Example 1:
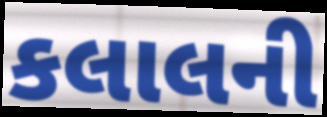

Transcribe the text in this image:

કલાલની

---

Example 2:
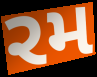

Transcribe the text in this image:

રમ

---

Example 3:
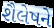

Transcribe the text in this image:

શૈલેષને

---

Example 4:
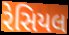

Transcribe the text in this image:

રેસિયલ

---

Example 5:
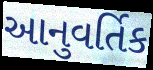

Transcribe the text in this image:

આનુવર્તિક